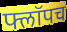
फ्लॉपच